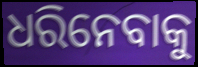
ଧରିନେବାକୁ